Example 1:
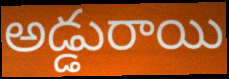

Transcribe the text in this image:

అడ్డురాయి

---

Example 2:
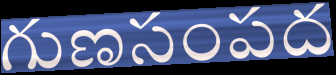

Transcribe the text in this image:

గుణసంపద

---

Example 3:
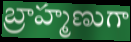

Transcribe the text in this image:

బ్రాహ్మణుగా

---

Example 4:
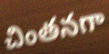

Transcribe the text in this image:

చింతనగా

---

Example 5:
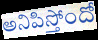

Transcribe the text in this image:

అనిపిస్తోందో